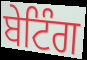
ਬੇਟਿੰਗ